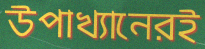
উপাখ্যানেরই